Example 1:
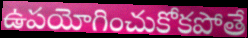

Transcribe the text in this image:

ఉపయోగించుకోకపోతే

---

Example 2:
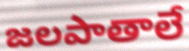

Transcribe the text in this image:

జలపాతాలే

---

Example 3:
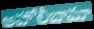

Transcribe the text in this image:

అహోలీబామా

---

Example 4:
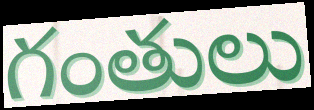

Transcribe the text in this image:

గంతులు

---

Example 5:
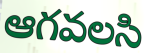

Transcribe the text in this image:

ఆగవలసి